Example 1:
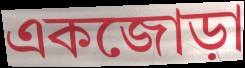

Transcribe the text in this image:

একজোড়া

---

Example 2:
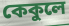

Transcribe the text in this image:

কেকুলে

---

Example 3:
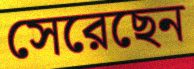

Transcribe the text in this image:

সেরেছেন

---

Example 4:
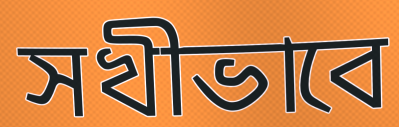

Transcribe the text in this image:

সখীভাবে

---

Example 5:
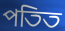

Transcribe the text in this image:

পতিত